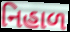
નિહાળ